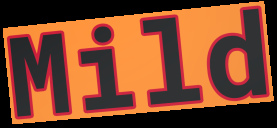
Mild